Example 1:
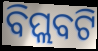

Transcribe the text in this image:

ବିପ୍ଲବଟି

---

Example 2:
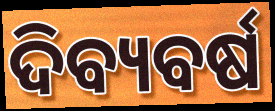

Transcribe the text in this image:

ଦିବ୍ୟବର୍ଷ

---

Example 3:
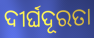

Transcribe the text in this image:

ଦୀର୍ଘଦୂରତା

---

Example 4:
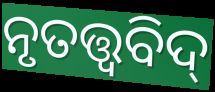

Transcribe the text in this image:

ନୃତତ୍ତ୍ଵବିଦ୍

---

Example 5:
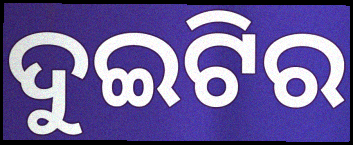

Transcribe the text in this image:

ଦୁଇଟିର